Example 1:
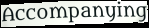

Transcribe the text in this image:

Accompanying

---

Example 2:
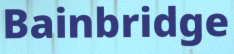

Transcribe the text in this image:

Bainbridge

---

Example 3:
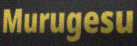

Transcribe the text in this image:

Murugesu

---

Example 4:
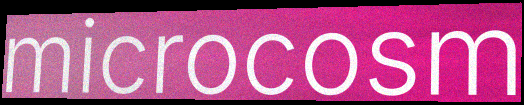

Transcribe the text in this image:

microcosm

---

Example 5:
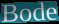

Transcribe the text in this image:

Bode